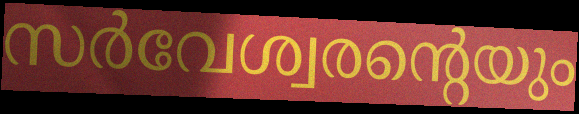
സർവേശ്വരന്റെയും